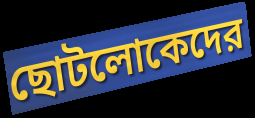
ছোটলোকেদের